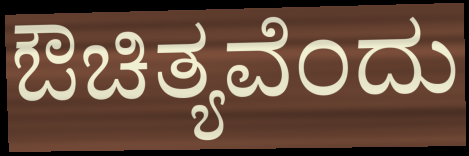
ಔಚಿತ್ಯವೆಂದು